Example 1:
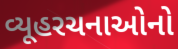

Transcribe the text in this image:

વ્યૂહરચનાઓનો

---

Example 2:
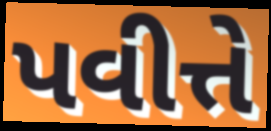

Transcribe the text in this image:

પવીત્તે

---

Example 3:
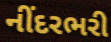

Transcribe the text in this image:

નીંદરભરી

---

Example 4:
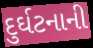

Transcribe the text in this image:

દુર્ઘટનાની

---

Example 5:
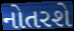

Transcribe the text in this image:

નોતરશે